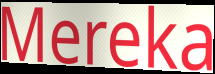
Mereka